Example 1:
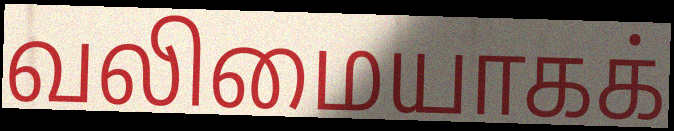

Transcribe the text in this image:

வலிமையாகக்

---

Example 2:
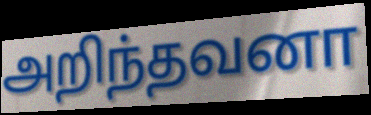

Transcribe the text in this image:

அறிந்தவனா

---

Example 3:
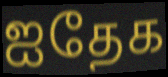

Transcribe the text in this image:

ஐதேக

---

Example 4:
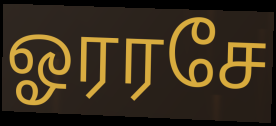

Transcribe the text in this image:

ஓரரசே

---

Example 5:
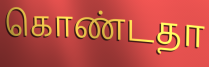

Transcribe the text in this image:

கொண்டதா